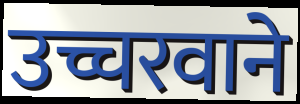
उच्चरवाने